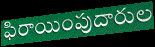
ఫిరాయింపుదారుల